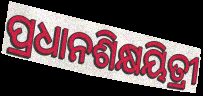
ପ୍ରଧାନଶିକ୍ଷୟିତ୍ରୀ